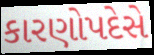
કારણોપદેસે